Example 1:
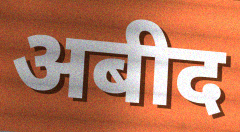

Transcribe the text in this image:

अबीद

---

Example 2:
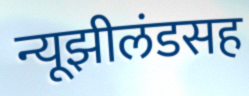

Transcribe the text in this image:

न्यूझीलंडसह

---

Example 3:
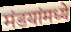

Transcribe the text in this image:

मंडयांमध्ये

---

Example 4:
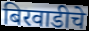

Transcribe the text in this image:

बिरवाडीचे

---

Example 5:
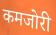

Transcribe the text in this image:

कमजोरी